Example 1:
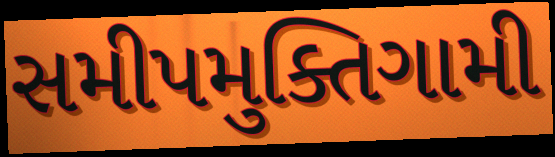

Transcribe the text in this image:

સમીપમુક્તિગામી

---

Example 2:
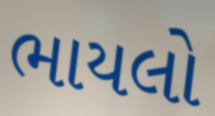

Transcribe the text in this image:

ભાયલો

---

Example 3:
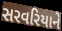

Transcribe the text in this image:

સરવરિયાને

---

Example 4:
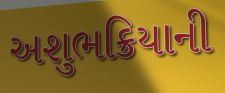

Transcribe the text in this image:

અશુભક્રિયાની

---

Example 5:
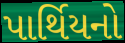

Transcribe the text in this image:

પાર્થિયનો